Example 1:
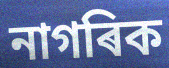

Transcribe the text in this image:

নাগৰিক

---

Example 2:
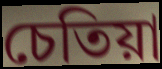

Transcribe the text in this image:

চেতিয়া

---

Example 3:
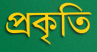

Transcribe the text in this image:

প্ৰকৃতি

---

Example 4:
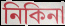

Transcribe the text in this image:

নিকিনা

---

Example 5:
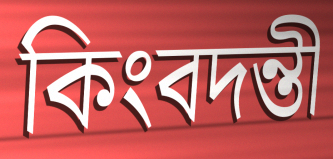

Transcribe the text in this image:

কিংবদন্তী